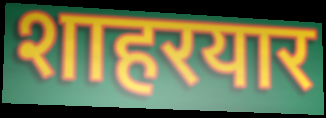
शाहरयार